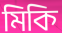
মিকি